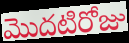
మొదటిరోజు